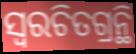
ସ୍ଵରଚିତଗ୍ରନ୍ଥି